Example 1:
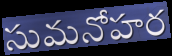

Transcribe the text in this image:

సుమనోహర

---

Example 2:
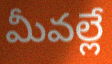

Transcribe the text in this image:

మీవల్లే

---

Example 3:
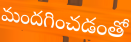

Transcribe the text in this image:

మందగించడంతో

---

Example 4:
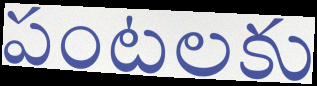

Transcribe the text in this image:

పంటలకు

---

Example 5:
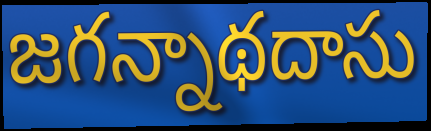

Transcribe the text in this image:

జగన్నాథదాసు